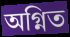
অগ্নিত